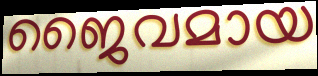
ജൈവമായ